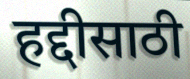
हद्दीसाठी